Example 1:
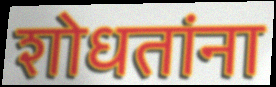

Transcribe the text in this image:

शोधतांना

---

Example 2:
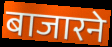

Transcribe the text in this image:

बाजारने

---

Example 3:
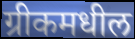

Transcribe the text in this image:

ग्रीकमधील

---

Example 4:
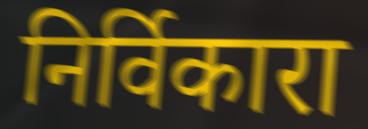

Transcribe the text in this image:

निर्विकारा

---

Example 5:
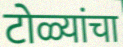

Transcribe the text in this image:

टोळ्यांचा